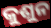
କୁଶୁନ